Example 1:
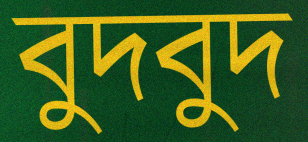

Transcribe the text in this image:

বুদবুদ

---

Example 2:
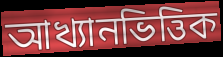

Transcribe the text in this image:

আখ্যানভিত্তিক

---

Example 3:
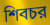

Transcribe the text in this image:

শিবচর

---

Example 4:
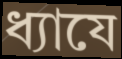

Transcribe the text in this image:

ধ্যাযে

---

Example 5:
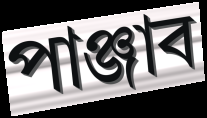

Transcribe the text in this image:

পাঞ্জাব